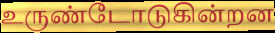
உருண்டோடுகின்றன